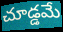
చూడ్డమే